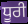
ਧੂਰੀ